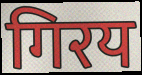
गिरय